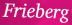
Frieberg